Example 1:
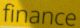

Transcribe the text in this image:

finance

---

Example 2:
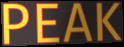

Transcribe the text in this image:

PEAK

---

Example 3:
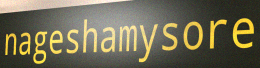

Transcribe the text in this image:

nageshamysore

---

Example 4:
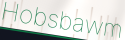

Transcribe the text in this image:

Hobsbawm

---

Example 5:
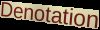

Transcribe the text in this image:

Denotation